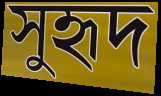
সুহৃদ